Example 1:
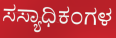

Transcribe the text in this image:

ಸಸ್ಯಾಧಿಕಂಗಳ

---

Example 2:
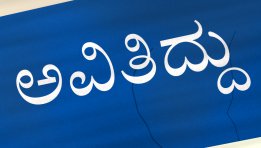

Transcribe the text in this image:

ಅವಿತಿದ್ದು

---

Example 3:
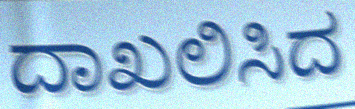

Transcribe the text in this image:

ದಾಖಲಿಸಿದ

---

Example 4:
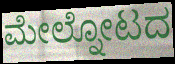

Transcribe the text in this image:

ಮೇಲ್ನೋಟದ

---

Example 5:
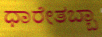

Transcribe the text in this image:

ಧಾರೇತಬ್ಬಾ